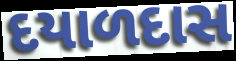
દયાળદાસ